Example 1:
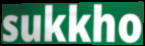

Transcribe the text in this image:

sukkho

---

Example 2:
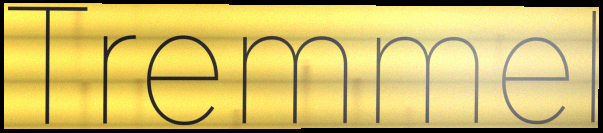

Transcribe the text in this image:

Tremmel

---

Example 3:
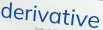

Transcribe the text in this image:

derivative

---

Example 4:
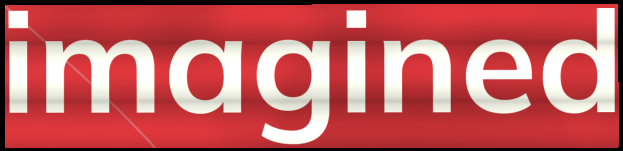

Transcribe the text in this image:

imagined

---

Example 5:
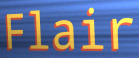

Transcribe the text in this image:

Flair